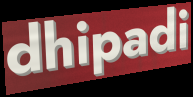
dhipadi